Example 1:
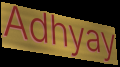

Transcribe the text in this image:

Adhyay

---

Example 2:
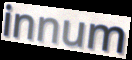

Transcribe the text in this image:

innum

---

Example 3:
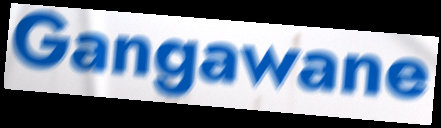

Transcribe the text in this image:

Gangawane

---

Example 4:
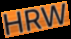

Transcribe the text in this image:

HRW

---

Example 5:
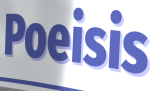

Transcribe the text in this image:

Poeisis